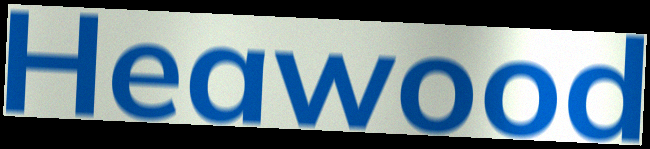
Heawood